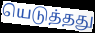
யெடுத்தது